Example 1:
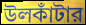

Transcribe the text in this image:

উলকাঁটার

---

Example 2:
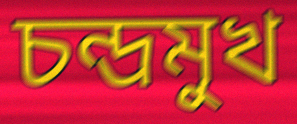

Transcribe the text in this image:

চন্দ্রমুখ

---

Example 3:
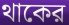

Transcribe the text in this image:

থাকের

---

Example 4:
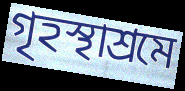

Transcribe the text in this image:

গৃহস্থাশ্রমে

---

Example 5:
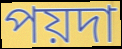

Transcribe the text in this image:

পয়দা